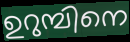
ഉറുമ്പിനെ